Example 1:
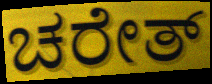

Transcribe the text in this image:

ಚರೇತ್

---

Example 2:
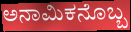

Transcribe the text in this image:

ಅನಾಮಿಕನೊಬ್ಬ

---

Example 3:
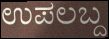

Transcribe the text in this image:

ಉಪಲಬ್ದ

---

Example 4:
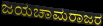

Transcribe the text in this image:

ಜಯಚಾಮರಾಜರ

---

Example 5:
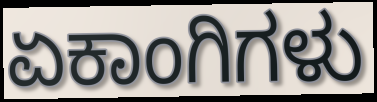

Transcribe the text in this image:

ಏಕಾಂಗಿಗಳು